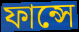
ফান্সে